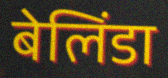
बेलिंडा